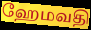
ஹேமவதி